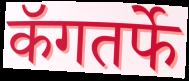
कॅगतर्फे